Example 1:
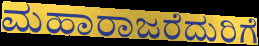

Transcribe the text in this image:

ಮಹಾರಾಜರೆದುರಿಗೆ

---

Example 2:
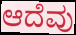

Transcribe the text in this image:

ಆದೆವು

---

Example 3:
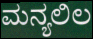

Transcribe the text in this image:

ಮನ್ಯಲಿಲ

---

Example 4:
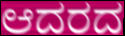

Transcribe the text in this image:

ಆದರದ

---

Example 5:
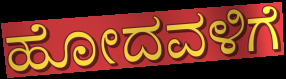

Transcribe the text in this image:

ಹೋದವಳಿಗೆ